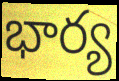
భార్య